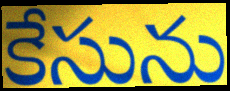
కేసును